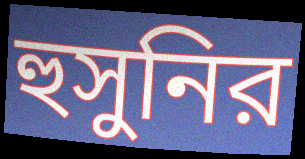
হুসুনির